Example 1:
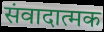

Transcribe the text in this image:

संवादात्मक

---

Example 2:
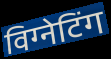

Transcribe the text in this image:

विग्नेटिंग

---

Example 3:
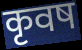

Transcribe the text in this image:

कृवष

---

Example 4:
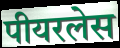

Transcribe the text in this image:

पीयरलेस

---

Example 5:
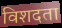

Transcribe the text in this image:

विशदता